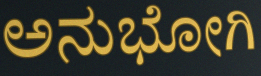
ಅನುಭೋಗಿ